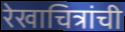
रेखाचित्रांची